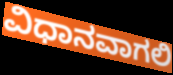
ವಿಧಾನವಾಗಲಿ